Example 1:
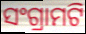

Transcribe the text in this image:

ସଂଗ୍ରାମଟି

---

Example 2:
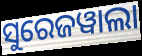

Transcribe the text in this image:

ସୁରେଜୱାଲା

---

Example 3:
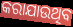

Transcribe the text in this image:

କରାଯାଉଥିବ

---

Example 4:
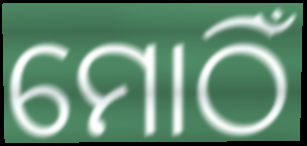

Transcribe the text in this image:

ମୋଠିଁ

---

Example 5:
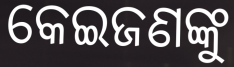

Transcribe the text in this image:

କେଇଜଣଙ୍କୁ